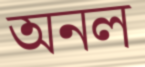
অনল